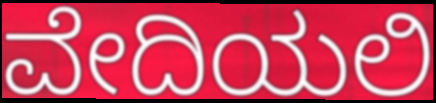
ವೇದಿಯಲಿ